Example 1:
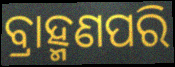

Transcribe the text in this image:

ବ୍ରାହ୍ମଣପରି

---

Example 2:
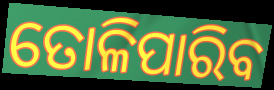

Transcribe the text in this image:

ତୋଳିପାରିବ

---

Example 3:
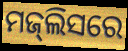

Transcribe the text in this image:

ମଜ୍‍ଲିସରେ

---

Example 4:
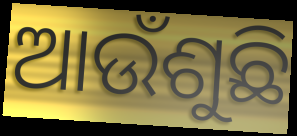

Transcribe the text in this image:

ଆଉଁଶୁଛି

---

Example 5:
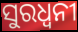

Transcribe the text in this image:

ସୁରଧ୍ୱନୀ